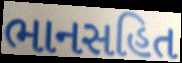
ભાનસહિત